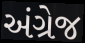
અંગ્રેજ